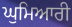
ਘੁਮਿਆਰੀ